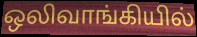
ஒலிவாங்கியில்